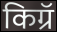
किग्रॅ